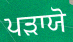
ਪੜਾਯੋ